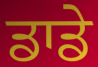
ਡਾਡੇ